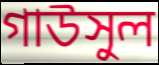
গাউসুল